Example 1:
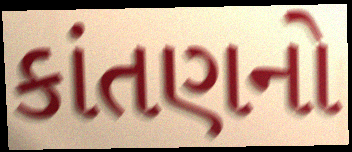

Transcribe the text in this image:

કાંતણનો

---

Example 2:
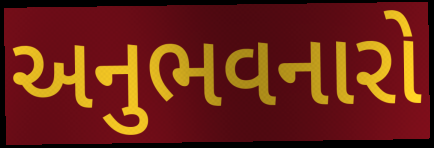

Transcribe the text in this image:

અનુભવનારો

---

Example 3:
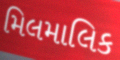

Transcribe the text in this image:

મિલમાલિક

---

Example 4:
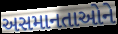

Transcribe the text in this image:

અસમાનતાઓને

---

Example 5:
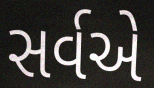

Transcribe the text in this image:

સર્વએ